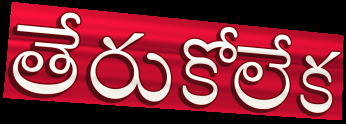
తేరుకోలేక